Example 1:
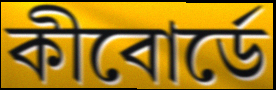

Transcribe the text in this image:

কীবোর্ডে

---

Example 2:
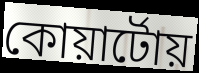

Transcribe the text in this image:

কোয়ার্টোয়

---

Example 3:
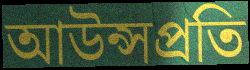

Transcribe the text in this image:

আউন্সপ্রতি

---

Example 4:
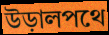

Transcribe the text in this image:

উড়ালপথে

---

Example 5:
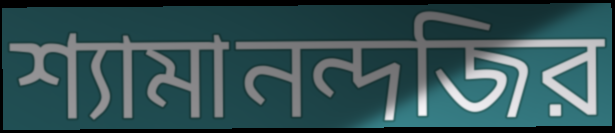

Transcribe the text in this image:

শ্যামানন্দজির